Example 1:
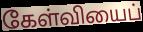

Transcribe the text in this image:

கேள்வியைப்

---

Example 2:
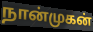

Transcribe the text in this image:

நான்முகன்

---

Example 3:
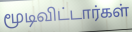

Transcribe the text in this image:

மூடிவிட்டார்கள்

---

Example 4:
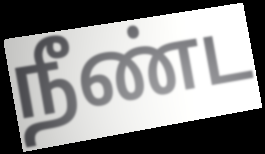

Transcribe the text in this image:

நீண்ட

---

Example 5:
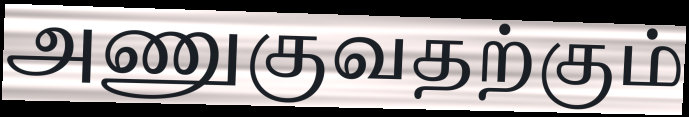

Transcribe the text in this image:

அணுகுவதற்கும்